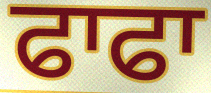
ਫਾਫਾ